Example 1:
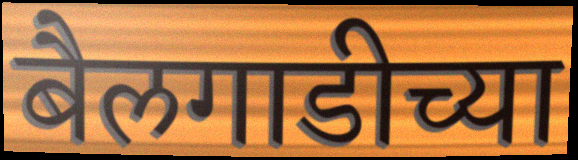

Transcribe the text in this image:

बैलगाडीच्या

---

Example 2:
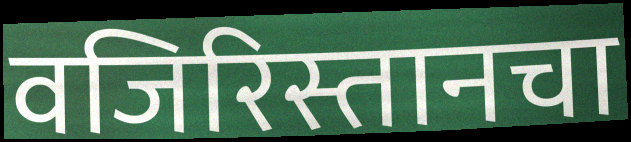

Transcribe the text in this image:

वजिरिस्तानचा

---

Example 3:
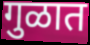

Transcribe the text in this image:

गुळात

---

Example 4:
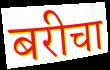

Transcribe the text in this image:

बरीचा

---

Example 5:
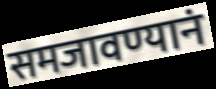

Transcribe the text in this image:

समजावण्यानं